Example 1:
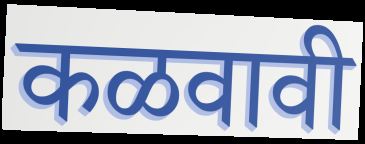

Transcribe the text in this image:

कळवावी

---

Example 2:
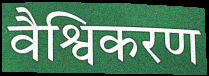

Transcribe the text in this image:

वैश्विकरण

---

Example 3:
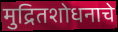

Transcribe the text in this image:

मुद्रितशोधनाचे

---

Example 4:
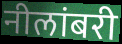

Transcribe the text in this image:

नीलांबरी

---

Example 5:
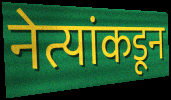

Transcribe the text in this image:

नेत्यांकडून